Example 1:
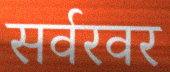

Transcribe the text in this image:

सर्वरवर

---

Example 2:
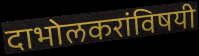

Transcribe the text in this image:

दाभोलकरांविषयी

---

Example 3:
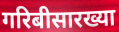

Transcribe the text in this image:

गरिबीसारख्या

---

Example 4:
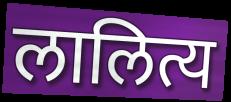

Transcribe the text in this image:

लालित्य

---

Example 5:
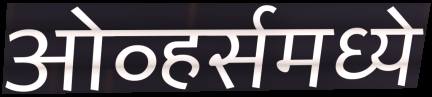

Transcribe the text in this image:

ओव्हर्समध्ये